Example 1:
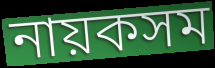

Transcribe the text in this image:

নায়কসম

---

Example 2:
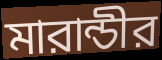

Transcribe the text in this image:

মারান্ডীর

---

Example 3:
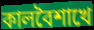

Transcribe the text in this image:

কালবৈশাখে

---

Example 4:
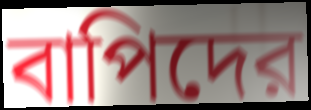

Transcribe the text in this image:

বাপিদের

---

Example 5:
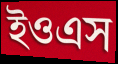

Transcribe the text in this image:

ইওএস